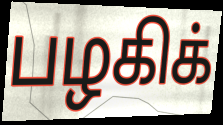
பழகிக்